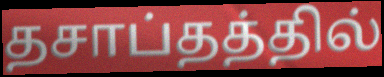
தசாப்தத்தில்